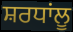
ਸ਼ਰਧਾਂਲੂ